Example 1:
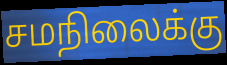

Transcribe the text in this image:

சமநிலைக்கு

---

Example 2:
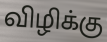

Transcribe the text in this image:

விழிக்கு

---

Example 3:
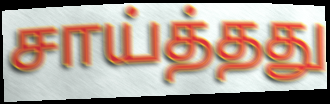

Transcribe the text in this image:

சாய்த்தது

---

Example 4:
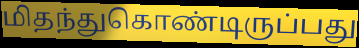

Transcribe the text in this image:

மிதந்துகொண்டிருப்பது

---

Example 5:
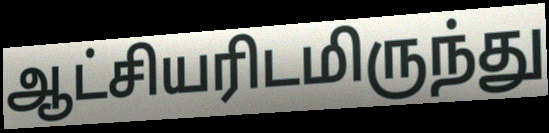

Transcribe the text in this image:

ஆட்சியரிடமிருந்து